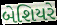
બેશિયરે